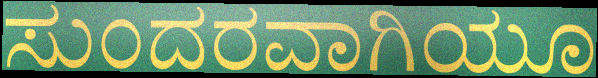
ಸುಂದರವಾಗಿಯೂ